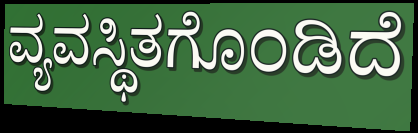
ವ್ಯವಸ್ಥಿತಗೊಂಡಿದೆ